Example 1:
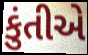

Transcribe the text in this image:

કુંતીએ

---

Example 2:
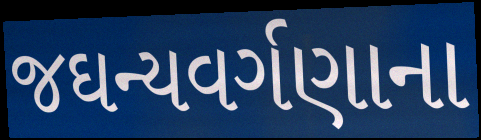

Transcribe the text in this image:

જઘન્યવર્ગણાના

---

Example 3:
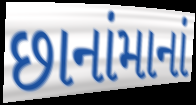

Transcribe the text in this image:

છાનાંમાનાં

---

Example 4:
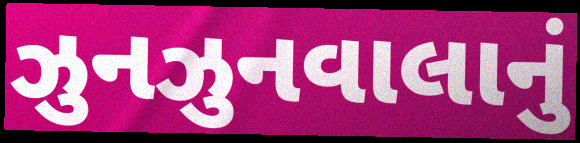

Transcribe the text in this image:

ઝુનઝુનવાલાનું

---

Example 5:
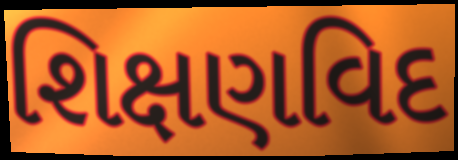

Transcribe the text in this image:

શિક્ષણવિદ